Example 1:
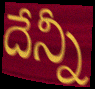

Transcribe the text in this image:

దేన్నీ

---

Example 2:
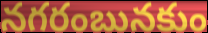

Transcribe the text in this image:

నగరంబునకుం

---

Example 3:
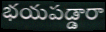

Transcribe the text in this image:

భయపడ్డారా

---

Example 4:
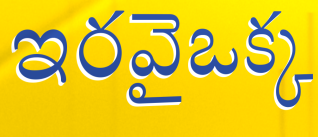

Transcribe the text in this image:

ఇరవైఒక్క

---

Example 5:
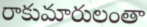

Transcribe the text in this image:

రాకుమారులంతా